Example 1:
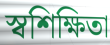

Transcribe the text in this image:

স্বশিক্ষিতা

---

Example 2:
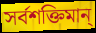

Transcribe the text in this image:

সর্বশক্তিমান্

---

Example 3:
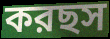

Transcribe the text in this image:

করছস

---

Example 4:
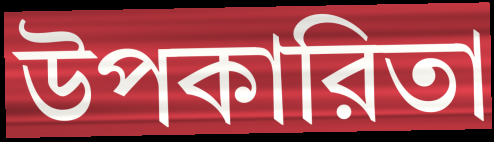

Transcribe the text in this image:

উপকারিতা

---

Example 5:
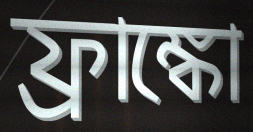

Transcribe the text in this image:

ফ্রাঙ্কো